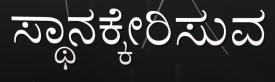
ಸ್ಥಾನಕ್ಕೇರಿಸುವ